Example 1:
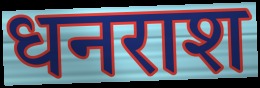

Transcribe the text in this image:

धनराश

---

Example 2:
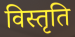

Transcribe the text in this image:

विस्तृति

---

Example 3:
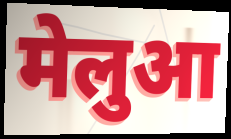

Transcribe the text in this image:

मेलुआ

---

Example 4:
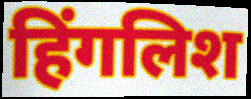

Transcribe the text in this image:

हिंगलिश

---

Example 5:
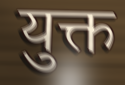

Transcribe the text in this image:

युक्त